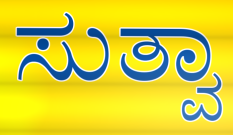
ಸುತ್ವಾ